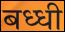
बध्धी